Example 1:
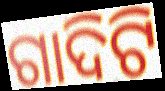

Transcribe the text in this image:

ଗାଦିଟି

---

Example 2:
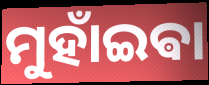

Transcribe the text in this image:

ମୁହାଁଇଵା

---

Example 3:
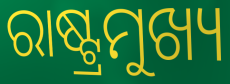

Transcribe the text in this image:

ରାଷ୍ଟ୍ରମୁଖ୍ୟ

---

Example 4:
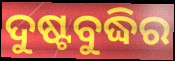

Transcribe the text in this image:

ଦୁଷ୍ଟବୁଦ୍ଧିର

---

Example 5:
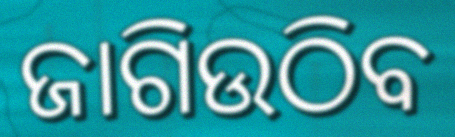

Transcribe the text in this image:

ଜାଗିଉଠିବ